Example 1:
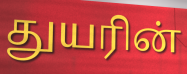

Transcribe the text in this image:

துயரின்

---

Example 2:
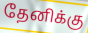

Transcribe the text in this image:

தேனிக்கு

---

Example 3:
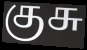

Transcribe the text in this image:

குசு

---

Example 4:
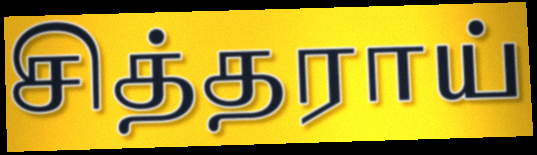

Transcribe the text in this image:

சித்தராய்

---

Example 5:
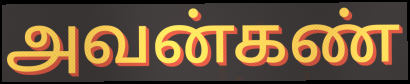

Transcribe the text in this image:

அவன்கண்